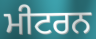
ਮੀਟਰਨ